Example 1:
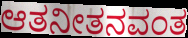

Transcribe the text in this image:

ಆತನೀತನವಂತ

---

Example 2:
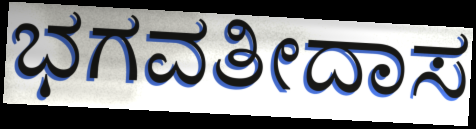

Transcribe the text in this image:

ಭಗವತೀದಾಸ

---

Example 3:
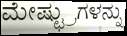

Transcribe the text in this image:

ಮೇಷ್ಟ್ರುಗಳನ್ನು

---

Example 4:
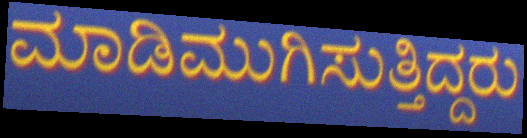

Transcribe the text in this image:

ಮಾಡಿಮುಗಿಸುತ್ತಿದ್ದರು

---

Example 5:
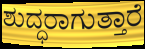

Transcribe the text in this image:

ಶುದ್ಧರಾಗುತ್ತಾರೆ